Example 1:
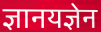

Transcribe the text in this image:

ज्ञानयज्ञेन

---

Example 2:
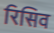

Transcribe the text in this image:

रिसिव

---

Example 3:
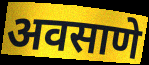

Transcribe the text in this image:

अवसाणे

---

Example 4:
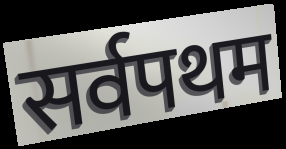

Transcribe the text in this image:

सर्वपथम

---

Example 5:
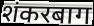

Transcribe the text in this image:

शंकरबाग